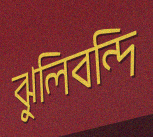
ঝুলিবন্দি